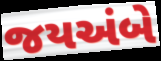
જયઅંબે